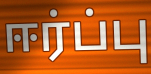
ஈர்ப்பு